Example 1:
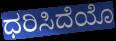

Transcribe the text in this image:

ಧರಿಸಿದೆಯೊ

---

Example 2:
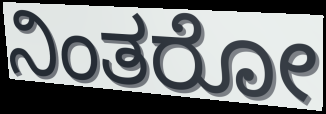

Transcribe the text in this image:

ನಿಂತರೋ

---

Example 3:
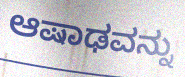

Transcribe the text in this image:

ಆಷಾಢವನ್ನು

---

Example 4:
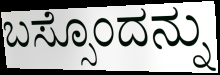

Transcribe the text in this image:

ಬಸ್ಸೊಂದನ್ನು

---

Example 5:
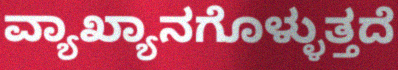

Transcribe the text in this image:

ವ್ಯಾಖ್ಯಾನಗೊಳ್ಳುತ್ತದೆ